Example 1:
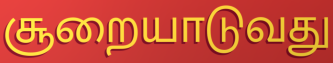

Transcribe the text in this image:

சூறையாடுவது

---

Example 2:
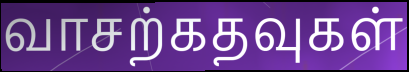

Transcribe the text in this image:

வாசற்கதவுகள்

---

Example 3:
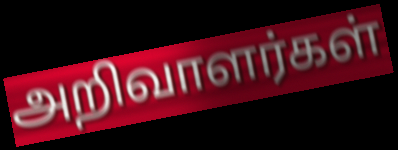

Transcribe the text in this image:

அறிவாளர்கள்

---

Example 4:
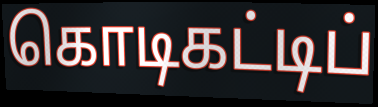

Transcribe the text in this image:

கொடிகட்டிப்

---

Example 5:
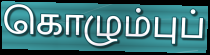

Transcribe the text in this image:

கொழும்புப்